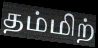
தம்மிற்